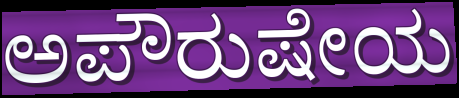
ಅಪೌರುಷೇಯ